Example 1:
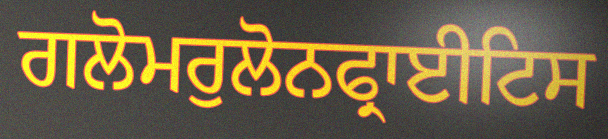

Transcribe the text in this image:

ਗਲੋਮਰੁਲੋਨਫ੍ਰਾਈਟਿਸ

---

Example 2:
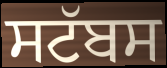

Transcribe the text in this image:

ਸਟੱਬਸ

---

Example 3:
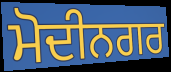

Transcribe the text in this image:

ਮੋਦੀਨਗਰ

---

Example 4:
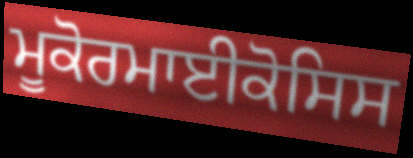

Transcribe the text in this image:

ਮੂਕੋਰਮਾਈਕੋਸਿਸ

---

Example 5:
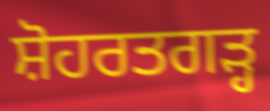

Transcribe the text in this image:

ਸ਼ੋਹਰਤਗੜ੍ਹ